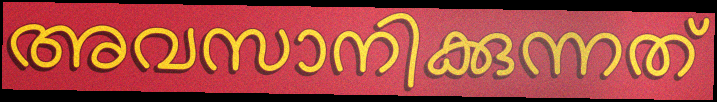
അവസാനിക്കുന്നത്